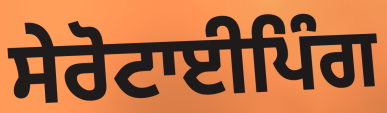
ਸੇਰੋਟਾਈਪਿੰਗ